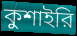
কুশাইরি